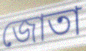
জোতা